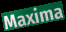
Maxima